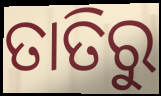
ତାତିରୁ